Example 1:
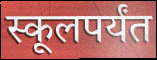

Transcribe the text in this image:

स्कूलपर्यंत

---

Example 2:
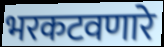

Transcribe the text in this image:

भरकटवणारे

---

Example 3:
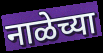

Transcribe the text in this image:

नाळेच्या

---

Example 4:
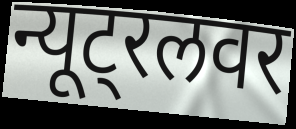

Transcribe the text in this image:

न्यूट्रलवर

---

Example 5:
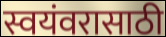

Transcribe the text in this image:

स्वयंवरासाठी